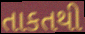
તાકતથી